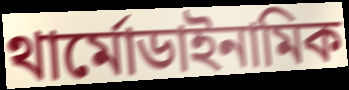
থার্মোডাইনামিক